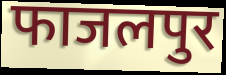
फाजलपुर